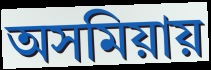
অসমিয়ায়